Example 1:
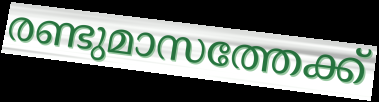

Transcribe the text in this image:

രണ്ടുമാസത്തേക്ക്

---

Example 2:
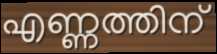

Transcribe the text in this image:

എണ്ണത്തിന്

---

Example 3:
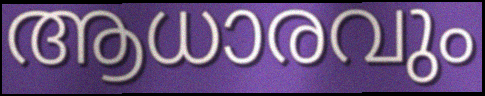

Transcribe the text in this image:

ആധാരവും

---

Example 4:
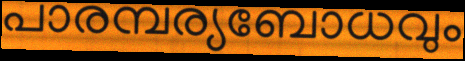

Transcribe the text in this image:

പാരമ്പര്യബോധവും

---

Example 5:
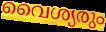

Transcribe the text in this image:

വൈശ്യരും